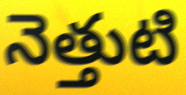
నెత్తుటి